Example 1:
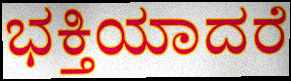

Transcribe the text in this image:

ಭಕ್ತಿಯಾದರೆ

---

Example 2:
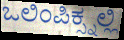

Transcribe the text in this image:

ಒಲಿಂಪಿಕ್ಸ್ನಲ್ಲಿ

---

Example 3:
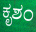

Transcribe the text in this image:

ಕೃಶಂ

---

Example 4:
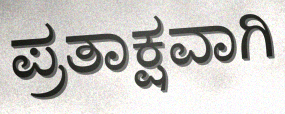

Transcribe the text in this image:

ಪ್ರತಾಕ್ಷವಾಗಿ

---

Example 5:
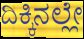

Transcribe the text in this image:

ದಿಕ್ಕಿನಲ್ಲೇ